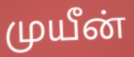
முயீன்